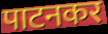
पाटनकर